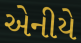
એનીયે